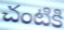
చంటికి